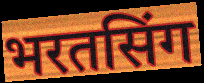
भरतसिंग